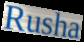
Rusha